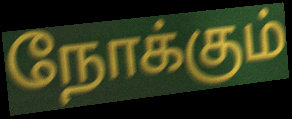
நோக்கும்